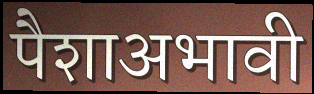
पैशाअभावी